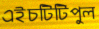
এইচটিটিপুল